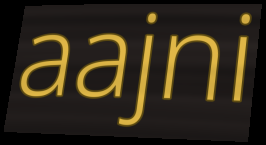
aajni